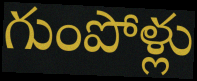
గుంపోళ్లు